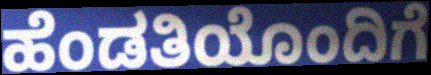
ಹೆಂಡತಿಯೊಂದಿಗೆ